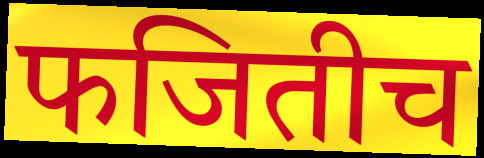
फजितीच